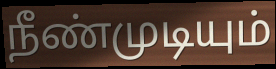
நீண்முடியும்